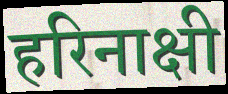
हरिनाक्षी